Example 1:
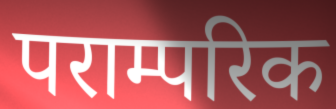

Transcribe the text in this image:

पराम्परिक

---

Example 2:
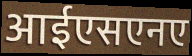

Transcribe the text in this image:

आईएसएनए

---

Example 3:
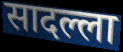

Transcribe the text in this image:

सादल्ला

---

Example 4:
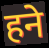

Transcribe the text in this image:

हने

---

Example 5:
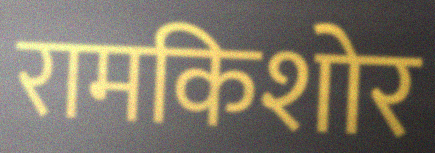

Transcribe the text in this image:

रामकिशोर